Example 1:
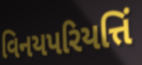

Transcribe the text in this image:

વિનયપરિયત્તિં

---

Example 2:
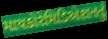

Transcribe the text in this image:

માયકોરેમિડિએશનનું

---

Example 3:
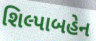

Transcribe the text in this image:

શિલ્પાબહેન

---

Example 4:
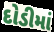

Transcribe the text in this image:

દોડીમાં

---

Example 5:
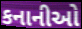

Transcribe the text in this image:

કનાનીઓ